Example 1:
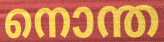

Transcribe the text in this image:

നൊന്ത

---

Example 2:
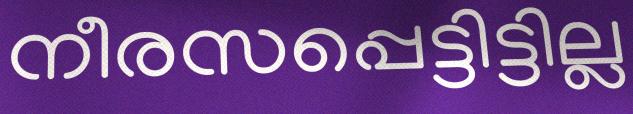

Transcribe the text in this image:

നീരസപ്പെട്ടിട്ടില്ല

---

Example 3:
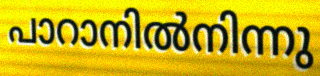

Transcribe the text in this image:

പാറാനിൽനിന്നു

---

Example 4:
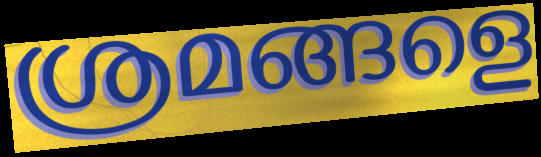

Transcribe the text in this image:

ശ്രമങ്ങളെ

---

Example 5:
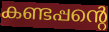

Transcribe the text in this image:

കണ്ടപ്പന്റെ